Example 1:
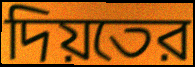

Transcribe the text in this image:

দিয়তের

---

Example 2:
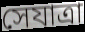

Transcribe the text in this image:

সেযাত্রা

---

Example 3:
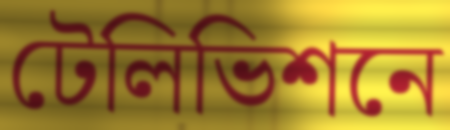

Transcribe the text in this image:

টেলিভিশনে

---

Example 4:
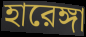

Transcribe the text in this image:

হারেঙ্গা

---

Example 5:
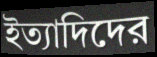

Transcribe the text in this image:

ইত্যাদিদের